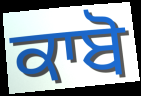
ਕਾਬੋ